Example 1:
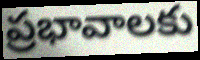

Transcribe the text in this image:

ప్రభావాలకు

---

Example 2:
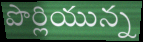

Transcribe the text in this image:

పొర్లియున్న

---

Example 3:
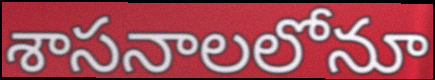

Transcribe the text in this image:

శాసనాలలోనూ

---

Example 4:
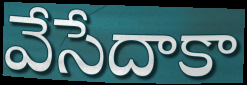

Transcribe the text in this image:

వేసేదాకా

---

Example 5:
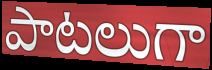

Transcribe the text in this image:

పాటలుగా